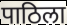
पाठिला